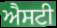
ਐਸਟੀ